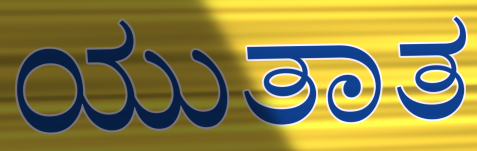
ಯುತಾತ